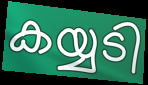
കയ്യടി